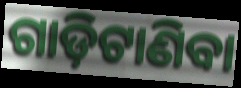
ଗାଡ଼ିଟାଣିବା